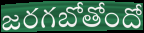
జరగబోతోందో